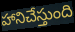
హానిచేస్తుంది